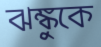
ঝঙ্কুকে